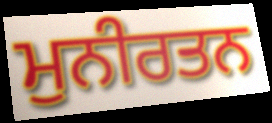
ਮੁਨੀਰਤਨ